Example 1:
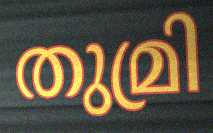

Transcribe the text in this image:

തുമ്രി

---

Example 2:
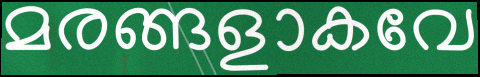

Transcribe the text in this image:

മരങ്ങളാകവേ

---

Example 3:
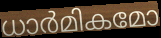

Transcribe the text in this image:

ധാർമികമോ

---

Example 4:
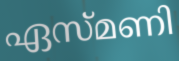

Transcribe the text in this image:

ഏസ്മണി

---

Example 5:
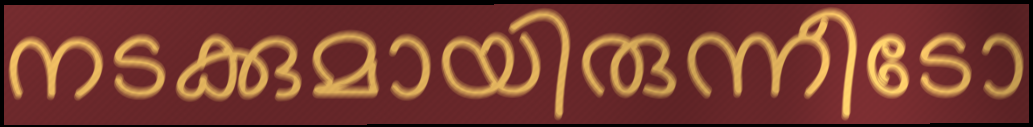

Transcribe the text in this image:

നടക്കുമായിരുന്നീടോ